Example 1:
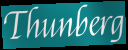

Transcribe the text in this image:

Thunberg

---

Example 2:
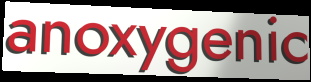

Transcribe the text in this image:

anoxygenic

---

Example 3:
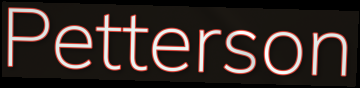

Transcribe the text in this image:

Petterson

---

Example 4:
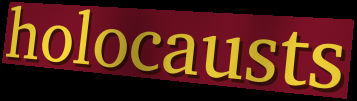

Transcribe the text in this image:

holocausts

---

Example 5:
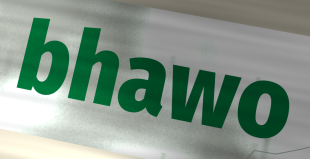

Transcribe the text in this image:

bhawo